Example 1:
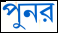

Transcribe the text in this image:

পুনর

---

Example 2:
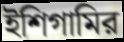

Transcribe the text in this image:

ইশিগামির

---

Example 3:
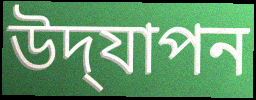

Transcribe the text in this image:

উদ্‌যাপন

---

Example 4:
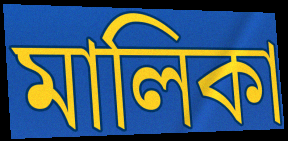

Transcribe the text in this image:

মালিকা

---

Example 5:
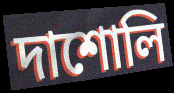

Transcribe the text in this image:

দাশোলি